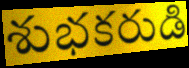
శుభకరుడి